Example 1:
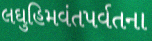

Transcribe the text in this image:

લઘુહિમવંતપર્વતના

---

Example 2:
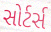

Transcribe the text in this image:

સોર્ટર્સ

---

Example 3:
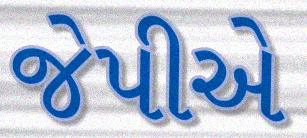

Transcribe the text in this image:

જેપીએ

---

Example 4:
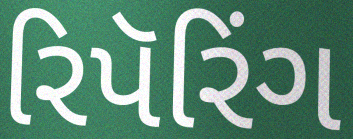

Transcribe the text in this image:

રિપૅરિંગ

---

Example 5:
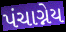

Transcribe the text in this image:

પંચાગ્નેય